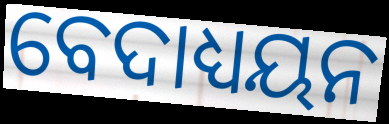
ବେଦାଧ୍ୟୟନ